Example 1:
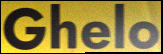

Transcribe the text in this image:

Ghelo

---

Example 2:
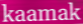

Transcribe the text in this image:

kaamak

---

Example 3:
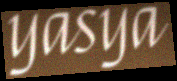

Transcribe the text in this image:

yasya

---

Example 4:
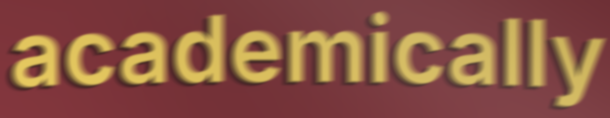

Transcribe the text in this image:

academically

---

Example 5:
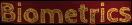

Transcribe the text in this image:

Biometrics